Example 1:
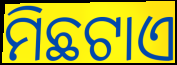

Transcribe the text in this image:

ମିଛଟାଏ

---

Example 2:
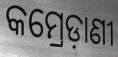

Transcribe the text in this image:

କମ୍ରେଡ଼ାଣୀ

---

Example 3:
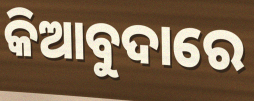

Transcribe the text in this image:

କିଆବୁଦାରେ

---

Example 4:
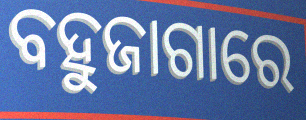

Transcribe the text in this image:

ବହୁଜାଗାରେ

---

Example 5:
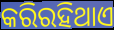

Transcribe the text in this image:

କରିରହିଥାଏ